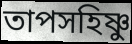
তাপসহিষ্ণু